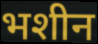
भशीन